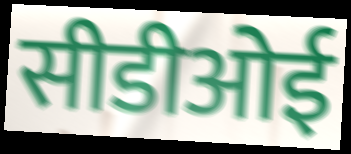
सीडीओई